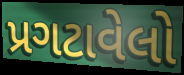
પ્રગટાવેલો